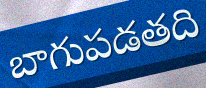
బాగుపడతది